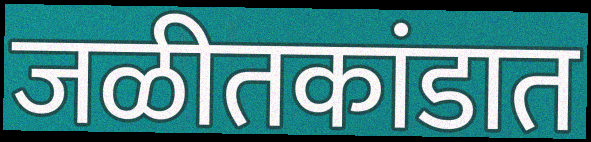
जळीतकांडात